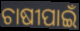
ଚାଷୀପାଇଁ